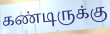
கண்டிருக்கு